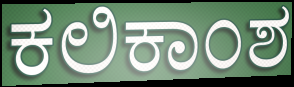
ಕಲಿಕಾಂಶ